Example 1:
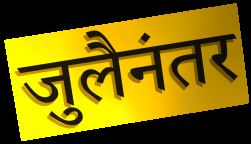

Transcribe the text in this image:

जुलैनंतर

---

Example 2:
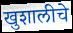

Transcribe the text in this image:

खुशालीचे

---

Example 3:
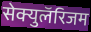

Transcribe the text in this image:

सेक्युलॅरिजम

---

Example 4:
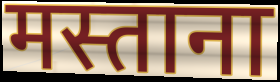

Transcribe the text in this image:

मस्ताना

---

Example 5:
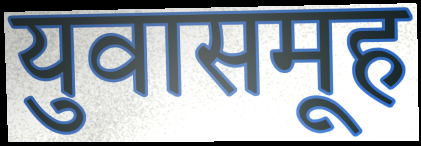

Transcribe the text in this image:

युवासमूह